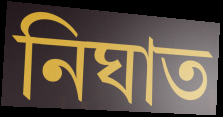
নিঘাত